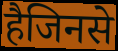
हैजिनसे